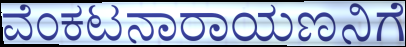
ವೆಂಕಟನಾರಾಯಣನಿಗೆ